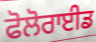
ਫੋਲੋਰਾਈਡ